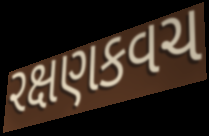
રક્ષણકવચ